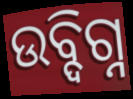
ଉବ୍ଦିଗ୍ନ